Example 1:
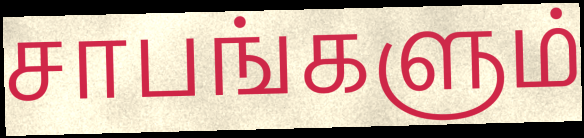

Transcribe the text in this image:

சாபங்களும்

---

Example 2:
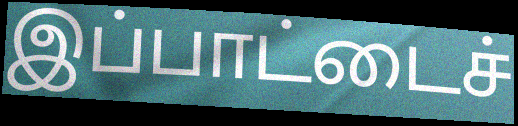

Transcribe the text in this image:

இப்பாட்டைச்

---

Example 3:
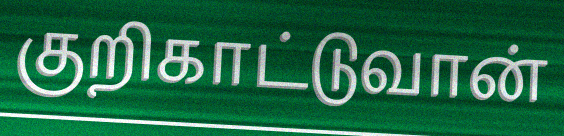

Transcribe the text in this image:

குறிகாட்டுவான்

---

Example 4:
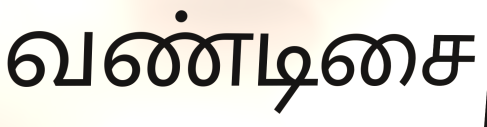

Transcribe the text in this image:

வண்டிசை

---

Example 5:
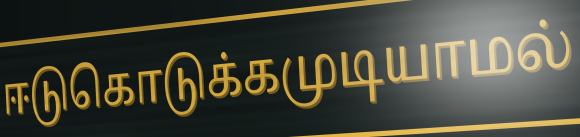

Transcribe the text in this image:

ஈடுகொடுக்கமுடியாமல்